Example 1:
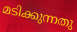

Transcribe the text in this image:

മടിക്കുന്നതു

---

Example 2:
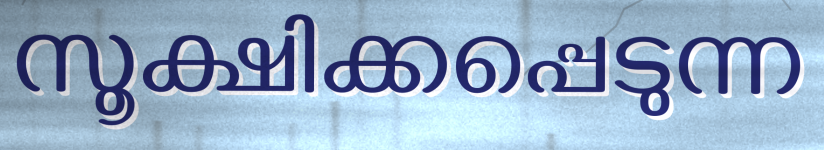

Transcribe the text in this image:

സൂക്ഷിക്കപ്പെടുന്ന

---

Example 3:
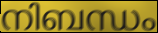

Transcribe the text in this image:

നിബന്ധം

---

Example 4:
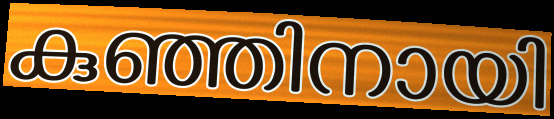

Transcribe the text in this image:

കുഞ്ഞിനായി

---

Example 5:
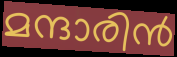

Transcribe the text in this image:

മന്ദാരിൻ